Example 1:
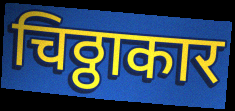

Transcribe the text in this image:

चिठ्ठाकार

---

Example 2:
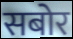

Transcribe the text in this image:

सबोर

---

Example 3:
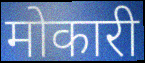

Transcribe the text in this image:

मोकारी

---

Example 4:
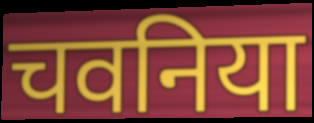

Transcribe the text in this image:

चवनिया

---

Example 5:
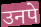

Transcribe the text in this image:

उनपे